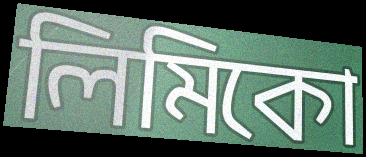
লিমিকো